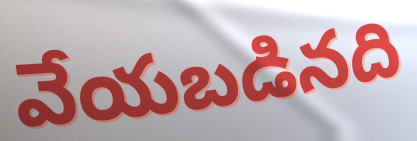
వేయబడినది